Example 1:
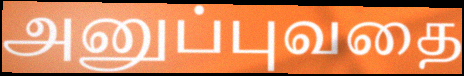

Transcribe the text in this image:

அனுப்புவதை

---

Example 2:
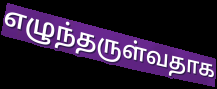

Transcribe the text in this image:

எழுந்தருள்வதாக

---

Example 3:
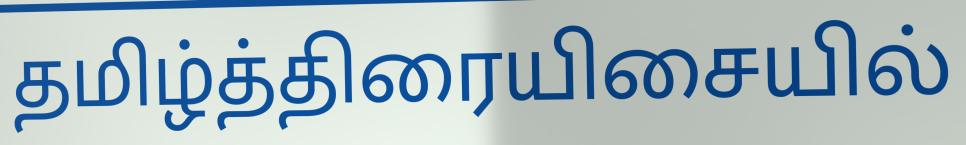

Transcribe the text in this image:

தமிழ்த்திரையிசையில்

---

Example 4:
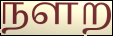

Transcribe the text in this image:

நளற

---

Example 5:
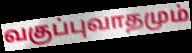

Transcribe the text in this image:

வகுப்புவாதமும்